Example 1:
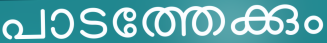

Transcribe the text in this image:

പാടത്തേക്കും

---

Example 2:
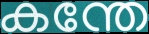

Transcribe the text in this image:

കന്തേ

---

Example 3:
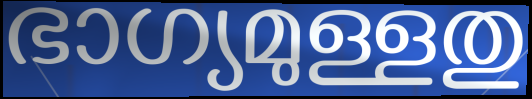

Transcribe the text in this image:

ഭാഗ്യമുള്ളതു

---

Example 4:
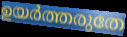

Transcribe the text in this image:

ഉയർത്തരുതേ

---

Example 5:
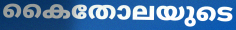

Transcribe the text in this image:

കൈതോലയുടെ